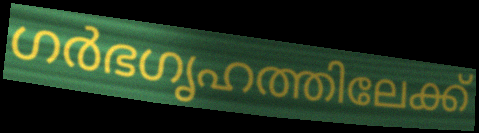
ഗർഭഗൃഹത്തിലേക്ക്